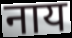
नाय